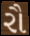
રૌ